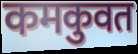
कमकुवत